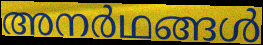
അനർഥങ്ങൾ